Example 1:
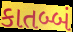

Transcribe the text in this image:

કાતબ્બં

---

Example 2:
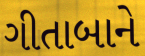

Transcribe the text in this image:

ગીતાબાને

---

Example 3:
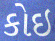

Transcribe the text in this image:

કોઇ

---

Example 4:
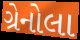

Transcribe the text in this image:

ગ્રેનોલા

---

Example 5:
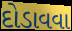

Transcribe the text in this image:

દોડાવવા